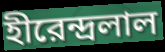
হীরেন্দ্রলাল